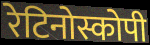
रेटिनोस्कोपी